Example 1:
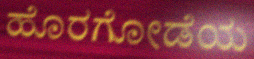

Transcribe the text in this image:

ಹೊರಗೋಡೆಯ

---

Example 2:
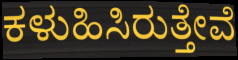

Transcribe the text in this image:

ಕಳುಹಿಸಿರುತ್ತೇವೆ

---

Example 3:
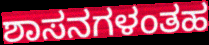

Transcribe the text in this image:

ಶಾಸನಗಳಂತಹ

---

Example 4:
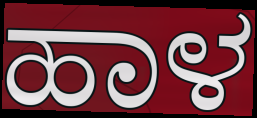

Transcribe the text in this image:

ಹಾಳ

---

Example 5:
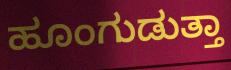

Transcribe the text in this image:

ಹೂಂಗುಡುತ್ತಾ